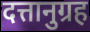
दत्तानुग्रह